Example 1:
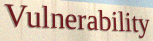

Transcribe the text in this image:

Vulnerability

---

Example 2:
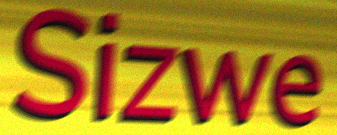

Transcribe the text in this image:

Sizwe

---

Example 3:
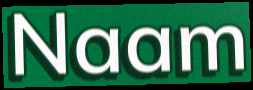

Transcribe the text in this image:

Naam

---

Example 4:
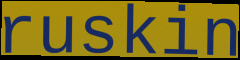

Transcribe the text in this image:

ruskin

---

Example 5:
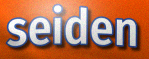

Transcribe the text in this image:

seiden